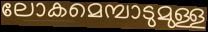
ലോകമെമ്പാടുമുള്ള